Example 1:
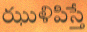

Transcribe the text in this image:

ఝుళిపిస్తే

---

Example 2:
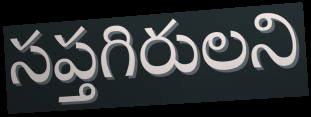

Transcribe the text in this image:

సప్తగిరులని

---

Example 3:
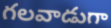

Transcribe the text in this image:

గలవాడుగా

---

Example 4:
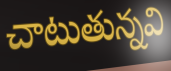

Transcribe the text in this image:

చాటుతున్నవి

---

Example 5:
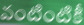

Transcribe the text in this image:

వంటింటికీ